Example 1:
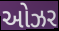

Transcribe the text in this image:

ઓઝર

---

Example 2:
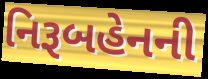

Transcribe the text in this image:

નિરૂબહેનની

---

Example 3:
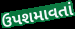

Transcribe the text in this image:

ઉપશમાવતાં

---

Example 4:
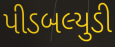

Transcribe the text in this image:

પીડબલ્યુડી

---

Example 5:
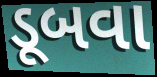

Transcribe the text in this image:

ડૂબવા